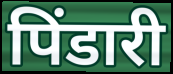
पिंडारी